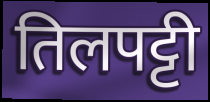
तिलपट्टी